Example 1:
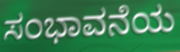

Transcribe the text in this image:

ಸಂಭಾವನೆಯ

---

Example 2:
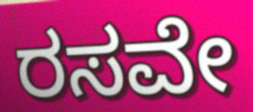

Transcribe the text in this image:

ರಸವೇ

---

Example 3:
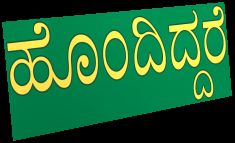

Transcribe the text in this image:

ಹೊಂದಿದ್ದರೆ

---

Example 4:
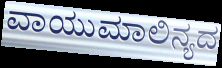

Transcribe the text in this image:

ವಾಯುಮಾಲಿನ್ಯದ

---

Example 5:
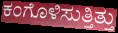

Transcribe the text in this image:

ಕಂಗೊಳಿಸುತ್ತಿತ್ತು